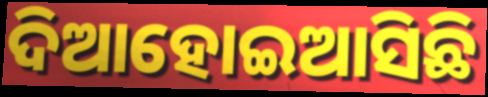
ଦିଆହୋଇଆସିଛି